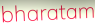
bharatam